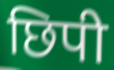
छिपी